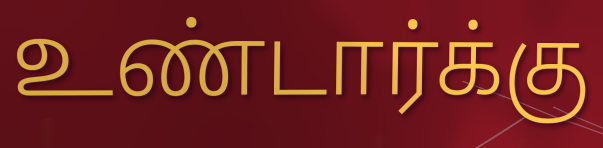
உண்டார்க்கு